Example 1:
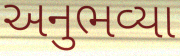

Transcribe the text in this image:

અનુભવ્યા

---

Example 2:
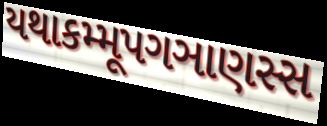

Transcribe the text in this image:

યથાકમ્મૂપગઞાણસ્સ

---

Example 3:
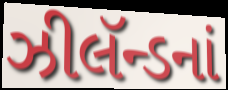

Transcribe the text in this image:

ઝીલૅન્ડનાં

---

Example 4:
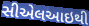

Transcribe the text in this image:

સીએલઆઇથી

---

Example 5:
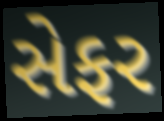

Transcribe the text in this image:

સેફર